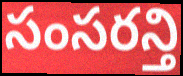
సంసరన్తి